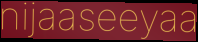
nijaaseeyaa